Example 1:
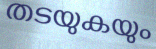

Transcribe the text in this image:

തടയുകയും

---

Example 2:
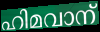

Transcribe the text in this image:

ഹിമവാന്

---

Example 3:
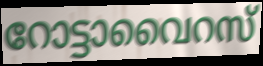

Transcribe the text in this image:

റോട്ടാവൈറസ്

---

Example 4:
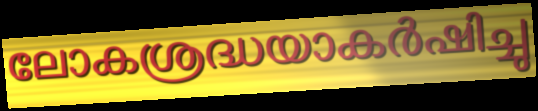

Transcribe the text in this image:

ലോകശ്രദ്ധയാകർഷിച്ചു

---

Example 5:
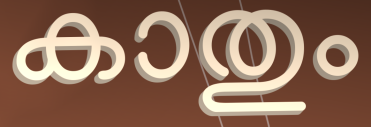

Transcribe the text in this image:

കാതും